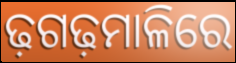
ଢ଼ଗଢ଼ମାଳିରେ